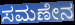
ಸಮಣೇನ